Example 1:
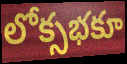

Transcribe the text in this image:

లోక్సభకూ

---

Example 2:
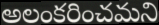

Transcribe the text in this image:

అలంకరించమని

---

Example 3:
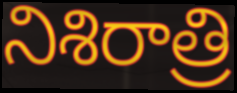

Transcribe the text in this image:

నిశిరాత్రి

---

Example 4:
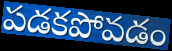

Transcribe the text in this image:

పడకపోవడం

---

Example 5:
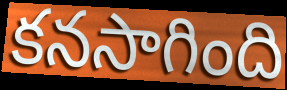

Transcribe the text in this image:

కనసాగింది